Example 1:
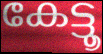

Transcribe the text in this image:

കേട്ടൂ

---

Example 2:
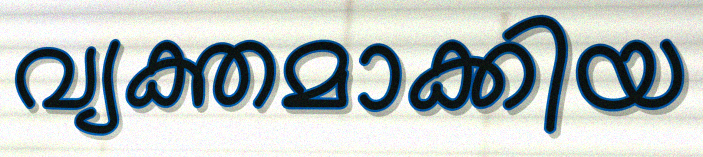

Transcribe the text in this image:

വ്യക്തമാക്കിയ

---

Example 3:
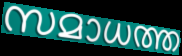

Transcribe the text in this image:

സമാധത്ത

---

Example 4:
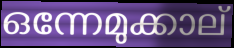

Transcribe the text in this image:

ഒന്നേമുക്കാല്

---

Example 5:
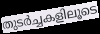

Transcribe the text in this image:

തുടർച്ചകളിലൂടെ